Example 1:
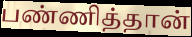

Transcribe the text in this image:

பண்ணித்தான்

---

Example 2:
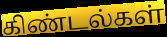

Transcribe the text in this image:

கிண்டல்கள்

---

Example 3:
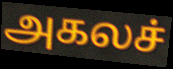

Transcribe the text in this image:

அகலச்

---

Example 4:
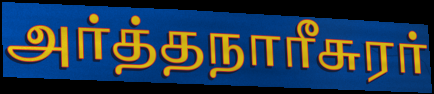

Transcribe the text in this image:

அர்த்தநாரீசுரர்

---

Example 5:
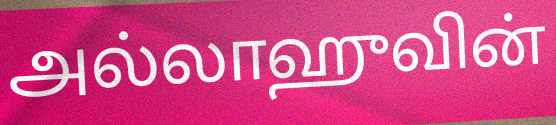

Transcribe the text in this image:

அல்லாஹுவின்